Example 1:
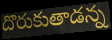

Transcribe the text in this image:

దొరుకుతాడన్న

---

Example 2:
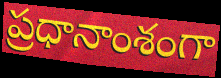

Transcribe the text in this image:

ప్రధానాంశంగా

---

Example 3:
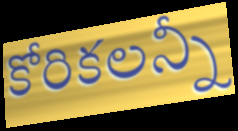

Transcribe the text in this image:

కోరికలన్నీ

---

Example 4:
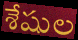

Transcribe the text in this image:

శేషుల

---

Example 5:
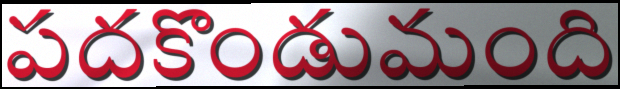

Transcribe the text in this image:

పదకొండుమంది